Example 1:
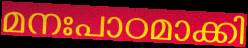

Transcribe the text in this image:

മനഃപാഠമാക്കി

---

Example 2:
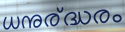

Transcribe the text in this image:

ധനുര്ദ്ധരം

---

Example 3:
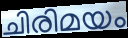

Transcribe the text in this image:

ചിരിമയം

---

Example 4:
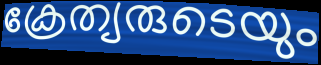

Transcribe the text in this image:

ക്രേത്യരുടെയും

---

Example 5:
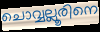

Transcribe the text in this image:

ചൊവ്വല്ലൂരിനെ